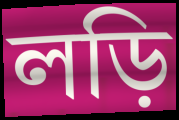
লড়ি